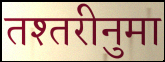
तश्तरीनुमा